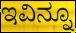
ಇವಿನ್ನೂ